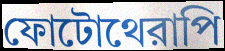
ফোটোথেরাপি